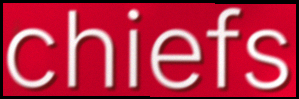
chiefs